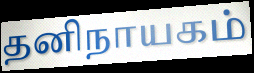
தனிநாயகம்